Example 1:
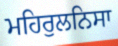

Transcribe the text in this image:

ਮਹਿਰੁਲਨਿਸਾ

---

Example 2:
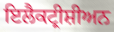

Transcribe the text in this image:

ਇਲੈਕਟ੍ਰੀਸ਼ੀਅਨ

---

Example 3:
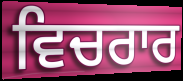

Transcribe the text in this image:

ਵਿਚਰਾਰ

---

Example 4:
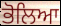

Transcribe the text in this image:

ਭੋਲਿਆ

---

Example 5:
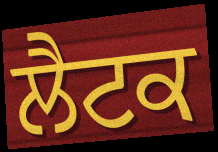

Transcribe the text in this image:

ਲੈਟਕ